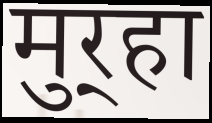
मुर्हा